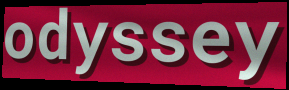
odyssey